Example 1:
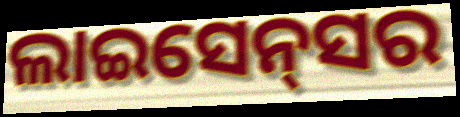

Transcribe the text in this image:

ଲାଇସେନ୍‌ସର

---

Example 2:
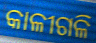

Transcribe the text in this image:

କାଳୀଗଳି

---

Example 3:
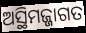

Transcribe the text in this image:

ଅସ୍ଥିମଜ୍ଜାଗତ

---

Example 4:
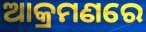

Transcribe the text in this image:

ଆକ୍ରମଣରେ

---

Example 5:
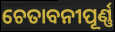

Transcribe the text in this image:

ଚେତାବନୀପୂର୍ଣ୍ଣ